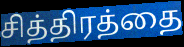
சித்திரத்தை